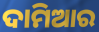
ଦାମିଆର